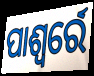
ପାଶ୍ୱର୍ରେ